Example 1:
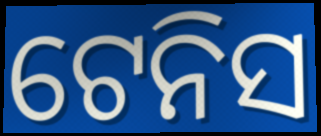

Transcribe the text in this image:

ଟେନିସ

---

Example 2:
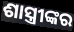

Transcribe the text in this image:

ଶାସ୍ତ୍ରୀଙ୍କର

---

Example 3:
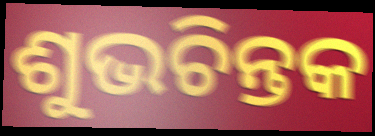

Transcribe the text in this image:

ଶୁଭଚିନ୍ତକ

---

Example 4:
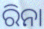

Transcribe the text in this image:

ରିନା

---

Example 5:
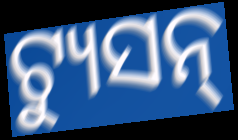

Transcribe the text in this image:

ଟ୍ୟୁସନ୍